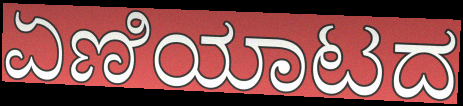
ಏಣಿಯಾಟದ